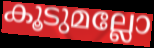
കൂടുമല്ലോ